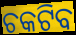
ଚକଟିବ